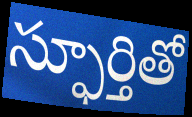
స్ఫూర్తితో